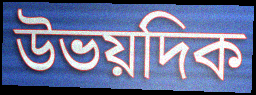
উভয়দিক